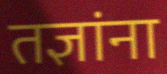
तज्ञांना